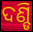
ଦଣ୍ଡି